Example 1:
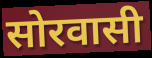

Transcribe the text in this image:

सोरवासी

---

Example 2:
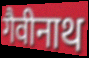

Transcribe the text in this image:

गैवीनाथ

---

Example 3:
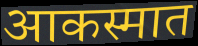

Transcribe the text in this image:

आकस्मात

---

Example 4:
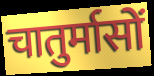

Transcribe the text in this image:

चातुर्मासों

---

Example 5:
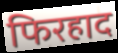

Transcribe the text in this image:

फिरहाद